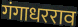
गंगाधरराव